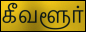
கீவளூர்